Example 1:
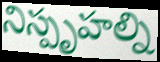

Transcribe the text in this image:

నిస్పృహల్ని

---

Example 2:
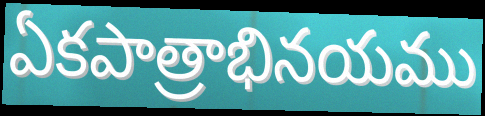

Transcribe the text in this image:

ఏకపాత్రాభినయము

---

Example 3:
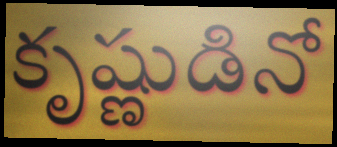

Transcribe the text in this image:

కృష్ణుడినో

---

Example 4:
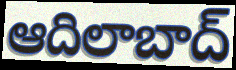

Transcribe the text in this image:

ఆదిలాబాద్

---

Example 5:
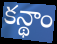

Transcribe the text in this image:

కన్థాం